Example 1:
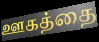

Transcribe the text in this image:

ஊகத்தை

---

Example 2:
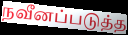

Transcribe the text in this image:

நவீனப்படுத்த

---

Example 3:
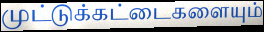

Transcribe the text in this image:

முட்டுக்கட்டைகளையும்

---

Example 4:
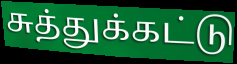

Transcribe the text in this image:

சுத்துக்கட்டு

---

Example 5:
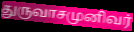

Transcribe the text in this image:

துருவாசமுனிவர்